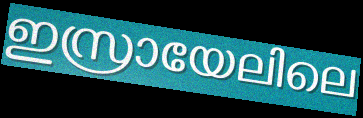
ഇസ്രായേലിലെ